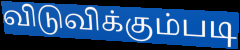
விடுவிக்கும்படி